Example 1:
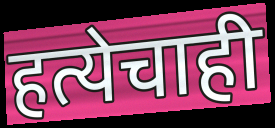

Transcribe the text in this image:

हत्येचाही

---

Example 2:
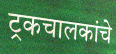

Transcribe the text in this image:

ट्रकचालकांचे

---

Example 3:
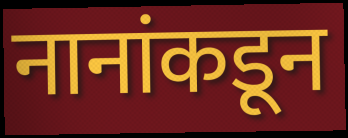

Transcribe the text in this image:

नानांकडून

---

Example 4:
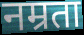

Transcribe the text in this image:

नम्रता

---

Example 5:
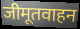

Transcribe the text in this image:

जीमूतवाहन